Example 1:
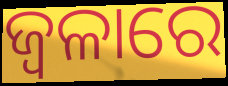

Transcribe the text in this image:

ଜ୍ୱଳାରେ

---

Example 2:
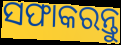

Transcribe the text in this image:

ସଫାକରନ୍ତୁ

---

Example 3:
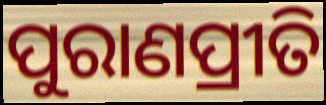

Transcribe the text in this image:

ପୁରାଣପ୍ରୀତି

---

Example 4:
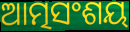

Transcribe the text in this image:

ଆତ୍ମସଂଶୟ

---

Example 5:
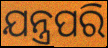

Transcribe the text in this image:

ଯନ୍ତ୍ରପରି